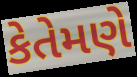
કેતેમણે